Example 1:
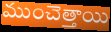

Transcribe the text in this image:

ముంచెత్తాయి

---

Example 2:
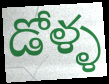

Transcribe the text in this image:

డోళ్ళ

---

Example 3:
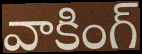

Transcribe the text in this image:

వాకింగ్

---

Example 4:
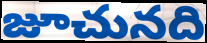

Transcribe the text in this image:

జూచునది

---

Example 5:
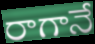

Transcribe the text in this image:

రాగానే